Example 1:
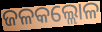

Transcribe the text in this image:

ଜଳକଲ୍ଲୋଳ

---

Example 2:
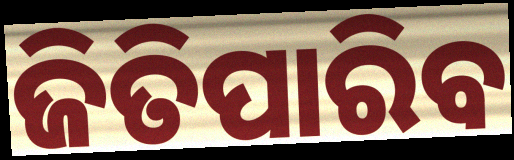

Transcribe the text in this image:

ଜିତିପାରିବ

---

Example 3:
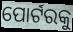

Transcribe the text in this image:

ପୋର୍ଟରକୁ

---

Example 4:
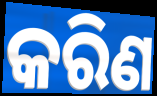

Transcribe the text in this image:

କରିଣ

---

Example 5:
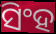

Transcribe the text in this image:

ସିଂହ